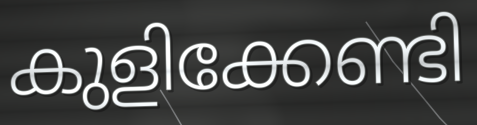
കുളിക്കേണ്ടി